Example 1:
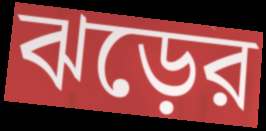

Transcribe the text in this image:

ঝড়ের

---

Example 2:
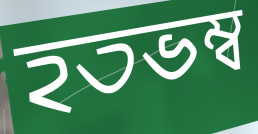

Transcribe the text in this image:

হতভম্ব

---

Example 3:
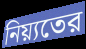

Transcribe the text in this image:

নিয়্যতের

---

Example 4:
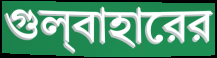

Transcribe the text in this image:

গুল্‌বাহারের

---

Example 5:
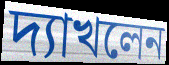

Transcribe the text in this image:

দ্যাখলেন